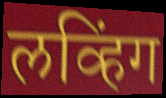
लव्हिंग